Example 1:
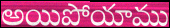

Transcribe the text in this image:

అయిపోయాము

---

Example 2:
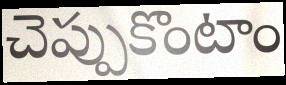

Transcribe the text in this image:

చెప్పుకొంటాం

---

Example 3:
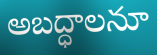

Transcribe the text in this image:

అబద్ధాలనూ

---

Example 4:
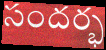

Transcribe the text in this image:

సందర్భ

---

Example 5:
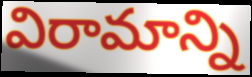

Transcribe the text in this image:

విరామాన్ని